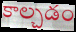
కాల్చడం